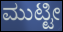
ಮುಟ್ಟೀ